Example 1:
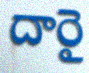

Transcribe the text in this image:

దారై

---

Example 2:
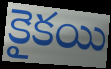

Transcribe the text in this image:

కైకయి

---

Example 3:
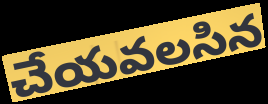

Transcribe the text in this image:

చేయవలసిన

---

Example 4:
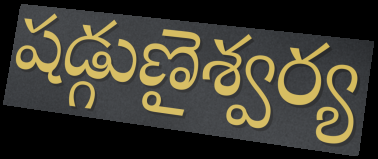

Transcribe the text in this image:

షడ్గుణైశ్వర్య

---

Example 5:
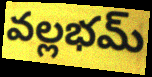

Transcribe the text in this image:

వల్లభమ్